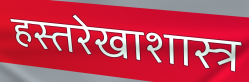
हस्तरेखाशास्त्र